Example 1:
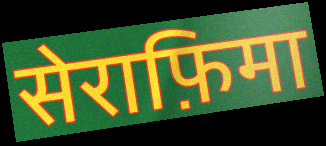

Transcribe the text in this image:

सेराफ़िमा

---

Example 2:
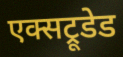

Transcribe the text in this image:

एक्सट्रूडेड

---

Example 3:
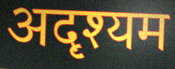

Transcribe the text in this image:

अदृश्यम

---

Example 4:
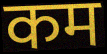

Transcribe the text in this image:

कम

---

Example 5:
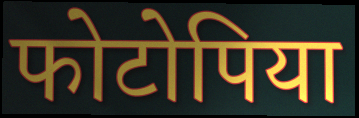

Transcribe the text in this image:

फोटोपिया